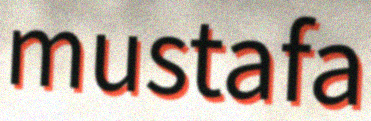
mustafa